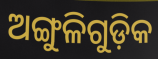
ଅଙ୍ଗୁଳିଗୁଡ଼ିକ